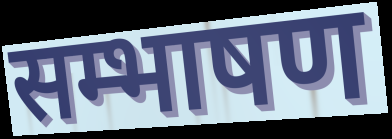
सम्भाषण